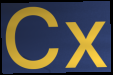
Cx